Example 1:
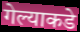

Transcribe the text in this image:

गेल्याकडे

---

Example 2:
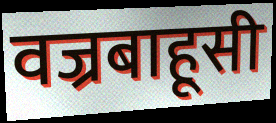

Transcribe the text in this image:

वज्रबाहूसी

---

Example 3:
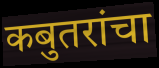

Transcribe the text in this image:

कबुतरांचा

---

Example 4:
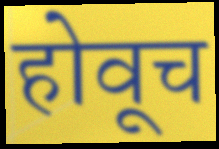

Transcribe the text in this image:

होवूच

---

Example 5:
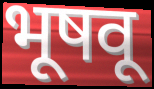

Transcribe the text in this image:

भूषवू